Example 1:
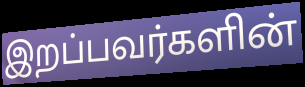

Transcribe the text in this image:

இறப்பவர்களின்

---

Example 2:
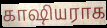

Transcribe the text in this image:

காஷியராக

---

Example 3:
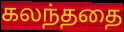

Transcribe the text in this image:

கலந்ததை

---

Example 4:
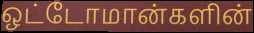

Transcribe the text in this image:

ஒட்டோமான்களின்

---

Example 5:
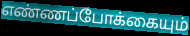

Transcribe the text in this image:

எண்ணப்போக்கையும்